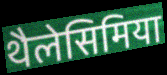
थैलेसिमिया